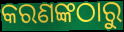
କରଣଙ୍କଠାରୁ